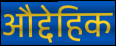
औद्देहिक